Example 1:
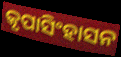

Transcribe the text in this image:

କୃପାସିଂହାସନ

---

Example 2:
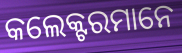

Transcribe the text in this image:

କଲେକ୍ଟରମାନେ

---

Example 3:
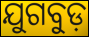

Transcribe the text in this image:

ଯୁଗବୁଡ଼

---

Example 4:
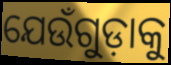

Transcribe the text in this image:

ଯେଉଁଗୁଡ଼ାକୁ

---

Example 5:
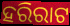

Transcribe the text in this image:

ହରିରାଟ